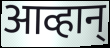
आव्हान्